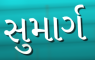
સુમાર્ગ